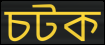
চটক